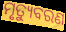
ମୃତ୍ୟୁବରଣ